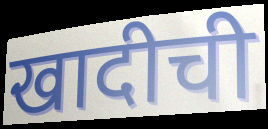
खादीची